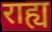
राह्य